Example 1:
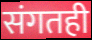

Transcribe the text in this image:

संगतही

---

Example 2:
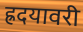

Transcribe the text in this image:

ह्रदयावरी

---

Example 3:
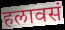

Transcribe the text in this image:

हलावसं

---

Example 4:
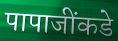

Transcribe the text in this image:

पापाजींकडे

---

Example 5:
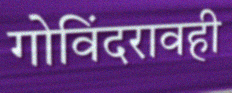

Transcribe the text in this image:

गोविंदरावही